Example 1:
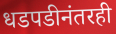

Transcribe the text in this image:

धडपडीनंतरही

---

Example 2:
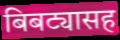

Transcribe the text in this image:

बिबट्यासह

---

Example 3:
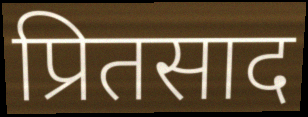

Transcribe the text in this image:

प्रितसाद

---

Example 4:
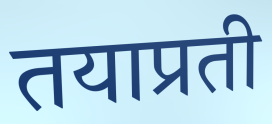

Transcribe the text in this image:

तयाप्रती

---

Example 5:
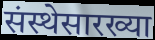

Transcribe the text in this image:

संस्थेसारख्या